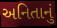
અનિતાનું